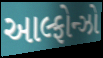
આલ્ફોન્ઝો